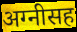
अग्नीसह